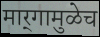
मार्गामुळेच